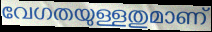
വേഗതയുള്ളതുമാണ്